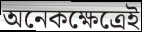
অনেকক্ষেত্রেই